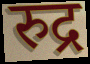
रुद्र